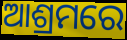
ଆଶ୍ରମରେ